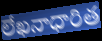
లేఖనాధారిత